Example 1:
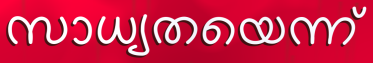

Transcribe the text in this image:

സാധ്യതയെന്ന്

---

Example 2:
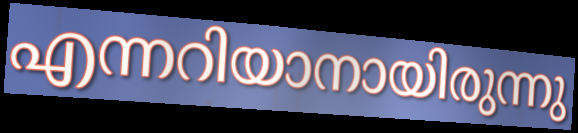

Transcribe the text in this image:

എന്നറിയാനായിരുന്നു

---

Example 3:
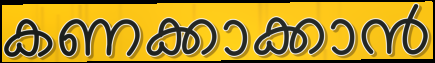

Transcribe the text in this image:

കണക്കാക്കാൻ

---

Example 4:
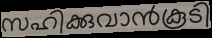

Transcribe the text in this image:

സഹിക്കുവാൻകൂടി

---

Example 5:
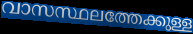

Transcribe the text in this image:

വാസസ്ഥലത്തേക്കുള്ള